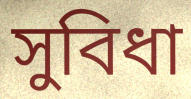
সুবিধা